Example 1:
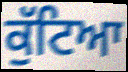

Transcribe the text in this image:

ਕੁੱਟਿਆ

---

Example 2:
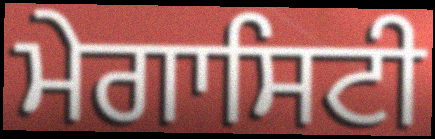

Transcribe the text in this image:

ਮੇਗਾਸਿਟੀ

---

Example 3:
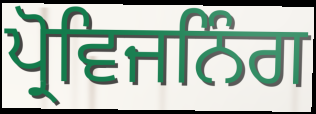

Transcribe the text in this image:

ਪ੍ਰੋਵਿਜਨਿੰਗ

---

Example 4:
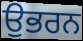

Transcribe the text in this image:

ਉਭਰਨ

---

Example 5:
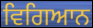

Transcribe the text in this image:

ਵਿਗਿਆਨ